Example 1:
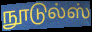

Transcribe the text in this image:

நூடுல்ஸ்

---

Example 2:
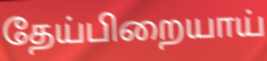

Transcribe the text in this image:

தேய்பிறையாய்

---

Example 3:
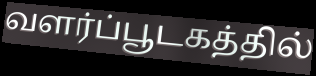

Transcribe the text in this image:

வளர்ப்பூடகத்தில்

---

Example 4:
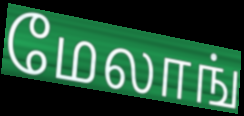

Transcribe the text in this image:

மேலாங்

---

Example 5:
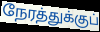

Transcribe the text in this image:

நேரத்துக்குப்